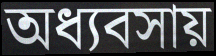
অধ্যবসায়